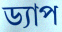
ড্যাপ